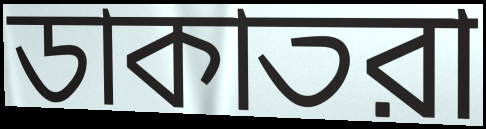
ডাকাতরা